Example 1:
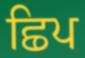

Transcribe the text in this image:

ਛਿਪ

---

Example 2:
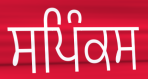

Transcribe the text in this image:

ਸਪਿੰਕਸ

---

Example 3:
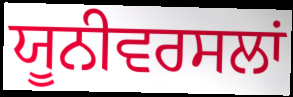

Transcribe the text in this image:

ਯੂਨੀਵਰਸਲਾਂ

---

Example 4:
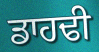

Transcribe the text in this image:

ਡਾਹਢੀ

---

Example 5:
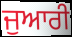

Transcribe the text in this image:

ਜੁਆਰੀ